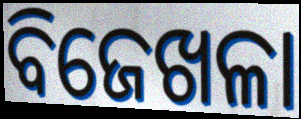
ବିଜେଖଳା